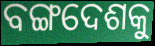
ବଙ୍ଗଦେଶକୁ